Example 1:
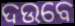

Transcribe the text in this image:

ଦଉବେ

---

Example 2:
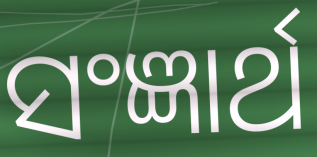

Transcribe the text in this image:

ସଂଜ୍ଞାର୍ଥ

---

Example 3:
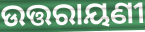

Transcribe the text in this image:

ଉତ୍ତରାୟଣୀ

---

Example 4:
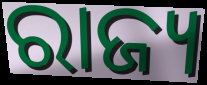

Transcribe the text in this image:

ରାଜ୍ୟ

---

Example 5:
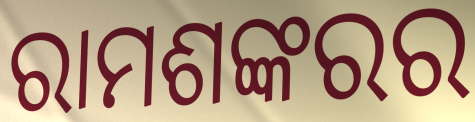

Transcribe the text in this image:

ରାମଶଙ୍କରର